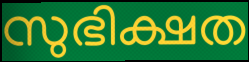
സുഭിക്ഷത